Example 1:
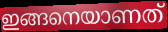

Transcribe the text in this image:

ഇങ്ങനെയാണത്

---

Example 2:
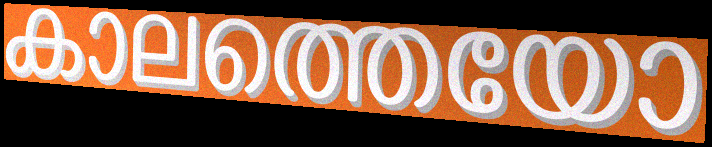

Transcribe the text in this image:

കാലത്തെയോ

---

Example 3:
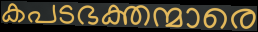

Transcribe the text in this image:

കപടഭക്തന്മാരെ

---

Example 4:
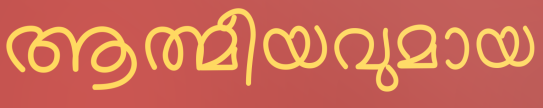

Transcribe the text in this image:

ആത്മീയവുമായ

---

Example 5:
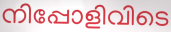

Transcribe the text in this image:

നിപ്പോളിവിടെ